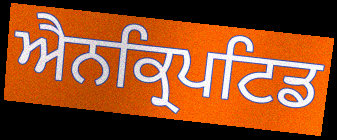
ਐਨਕ੍ਰਿਪਟਿਡ